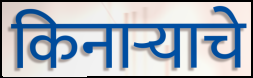
किनाऱ्याचे